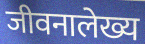
जीवनालेख्य